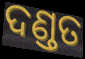
ଦଣ୍ଡତ